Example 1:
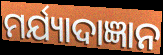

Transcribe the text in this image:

ମର୍ଯ୍ୟାଦାଜ୍ଞାନ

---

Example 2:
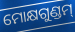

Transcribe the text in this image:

ମୋକ୍ଷଗୁଣ୍ଡମ୍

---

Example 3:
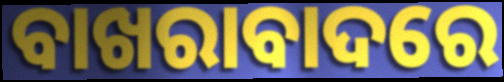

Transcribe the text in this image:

ବାଖରାବାଦରେ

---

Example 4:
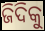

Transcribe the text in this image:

ଜିଦିକୁ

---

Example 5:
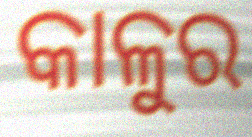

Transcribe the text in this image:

କାଳୁର